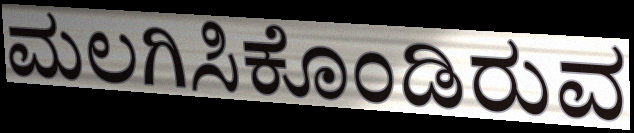
ಮಲಗಿಸಿಕೊಂಡಿರುವ